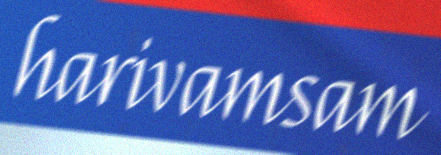
harivamsam